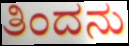
ತಿಂದನು